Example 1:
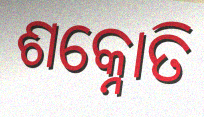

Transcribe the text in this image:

ଶକ୍ନୋତି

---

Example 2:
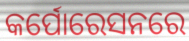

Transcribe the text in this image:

କର୍ପୋରେସନରେ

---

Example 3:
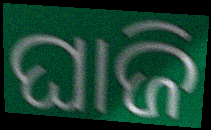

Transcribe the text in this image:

ଘାଜି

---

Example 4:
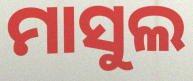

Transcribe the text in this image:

ମାସୁଲ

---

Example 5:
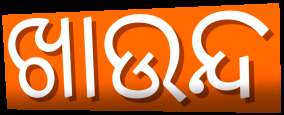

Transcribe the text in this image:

ଖାଉନ୍ଦ